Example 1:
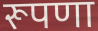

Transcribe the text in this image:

रूपणा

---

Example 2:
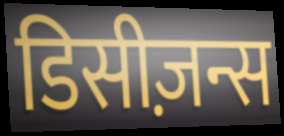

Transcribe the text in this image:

डिसीज़न्स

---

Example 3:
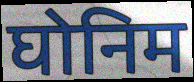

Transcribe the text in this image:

घोनिम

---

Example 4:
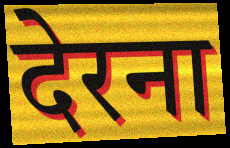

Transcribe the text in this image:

देरना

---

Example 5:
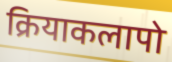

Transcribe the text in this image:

क्रियाकलापो